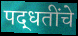
पद्धतींचे